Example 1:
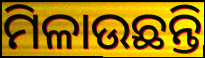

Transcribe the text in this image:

ମିଳାଉଛନ୍ତି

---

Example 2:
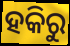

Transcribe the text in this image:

ହକିରୁ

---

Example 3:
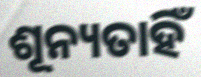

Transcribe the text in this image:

ଶୂନ୍ୟତାହିଁ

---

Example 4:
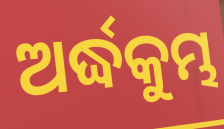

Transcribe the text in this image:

ଅର୍ଦ୍ଧକୁମ୍ଭ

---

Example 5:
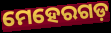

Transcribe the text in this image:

ମେହେରଗଡ଼